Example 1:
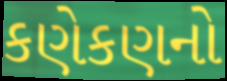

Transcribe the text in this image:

કણેકણનો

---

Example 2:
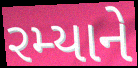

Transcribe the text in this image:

રમ્યાને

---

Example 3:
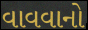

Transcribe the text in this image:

વાવવાનો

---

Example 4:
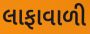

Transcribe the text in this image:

લાફાવાળી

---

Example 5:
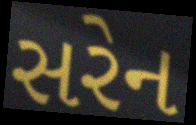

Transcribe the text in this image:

સરેન